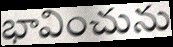
భావించును